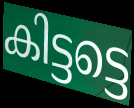
കിട്ടട്ടെ